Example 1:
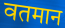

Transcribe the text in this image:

वतमान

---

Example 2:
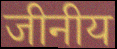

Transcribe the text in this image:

जीनीय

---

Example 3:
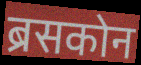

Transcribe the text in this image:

ब्रसकोन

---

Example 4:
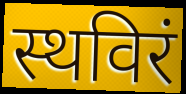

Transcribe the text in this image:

स्थविरं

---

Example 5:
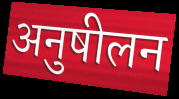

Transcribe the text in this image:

अनुषीलन